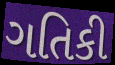
ગતિકી